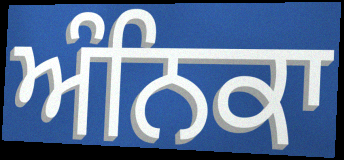
ਅੰਨਿਕਾ